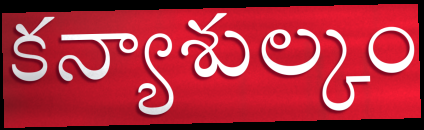
కన్యాశుల్కం